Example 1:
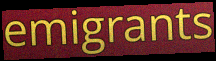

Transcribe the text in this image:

emigrants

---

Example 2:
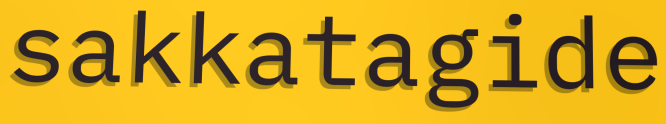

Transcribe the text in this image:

sakkatagide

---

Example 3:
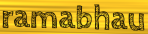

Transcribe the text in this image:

ramabhau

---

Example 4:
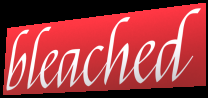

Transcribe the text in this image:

bleached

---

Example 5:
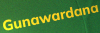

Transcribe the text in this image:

Gunawardana